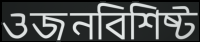
ওজনবিশিষ্ট